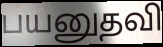
பயனுதவி